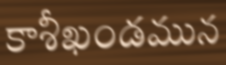
కాశీఖండమున